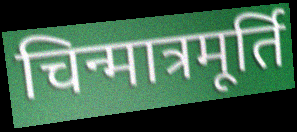
चिन्मात्रमूर्ति